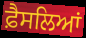
ਫ਼ੈਸਲਿਆਂ